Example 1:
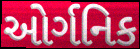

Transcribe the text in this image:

ઓર્ગનિક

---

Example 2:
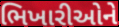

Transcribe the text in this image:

ભિખારીઓને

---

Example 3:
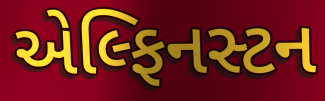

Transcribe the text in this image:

એલ્ફિનસ્ટન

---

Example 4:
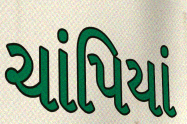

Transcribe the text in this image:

ચાંપિયાં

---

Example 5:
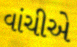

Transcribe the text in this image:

વાંચીએ